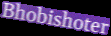
Bhobishoter